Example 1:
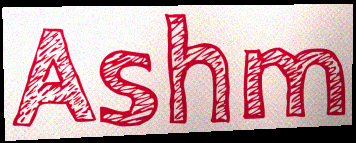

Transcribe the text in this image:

Ashm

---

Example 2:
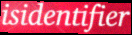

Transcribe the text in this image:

isidentifier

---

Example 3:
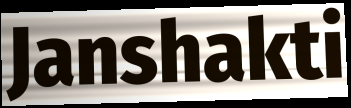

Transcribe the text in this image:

Janshakti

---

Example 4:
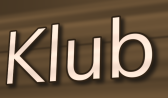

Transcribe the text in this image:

Klub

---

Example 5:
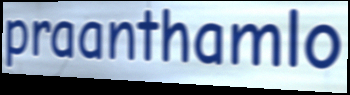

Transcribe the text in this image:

praanthamlo